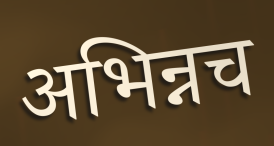
अभिन्नच